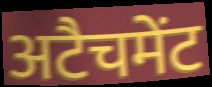
अटैचमेंट